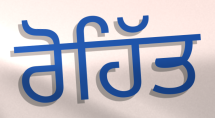
ਰੋਹਿੱਤ